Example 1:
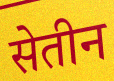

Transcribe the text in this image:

सेतीन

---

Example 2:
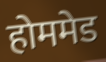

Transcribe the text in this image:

होममेड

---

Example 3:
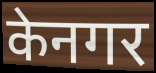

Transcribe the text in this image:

केनगर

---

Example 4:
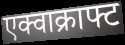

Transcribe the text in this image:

एक्वाक्राफ्ट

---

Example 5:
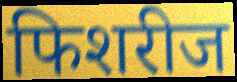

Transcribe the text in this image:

फिशरीज